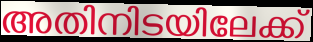
അതിനിടയിലേക്ക്